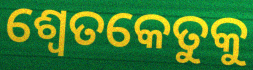
ଶ୍ୱେତକେତୁକୁ